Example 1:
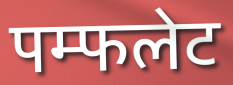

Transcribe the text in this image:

पम्फलेट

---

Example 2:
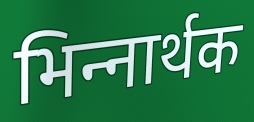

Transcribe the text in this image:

भिन्नार्थक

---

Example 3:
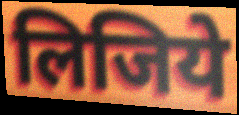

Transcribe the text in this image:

लिजिये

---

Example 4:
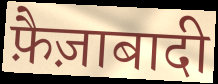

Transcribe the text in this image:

फ़ैज़ाबादी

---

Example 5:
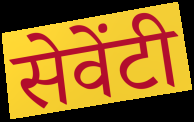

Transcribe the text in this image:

सेवेंटी